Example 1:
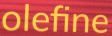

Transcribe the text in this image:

olefine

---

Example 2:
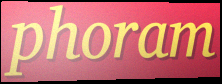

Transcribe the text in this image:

phoram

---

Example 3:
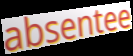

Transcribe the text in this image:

absentee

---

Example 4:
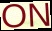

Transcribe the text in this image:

ON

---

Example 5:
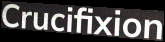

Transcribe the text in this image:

Crucifixion